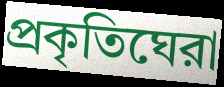
প্রকৃতিঘেরা